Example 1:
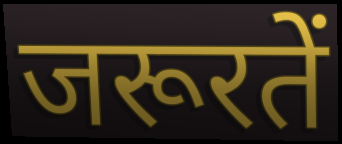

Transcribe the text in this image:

जरूरतें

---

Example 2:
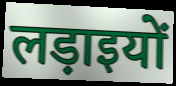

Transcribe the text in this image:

लड़ाइयों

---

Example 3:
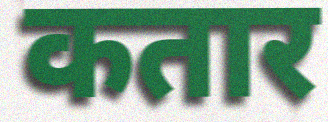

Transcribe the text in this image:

कतार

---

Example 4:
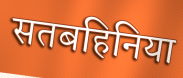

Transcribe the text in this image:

सतबहिनिया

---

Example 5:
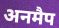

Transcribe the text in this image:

अनमैप